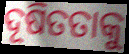
ଦୂଷିତତାକୁ